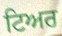
ਟਿਅਰ